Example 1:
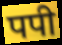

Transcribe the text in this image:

पपी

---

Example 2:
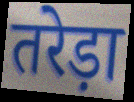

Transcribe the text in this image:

तरेड़ा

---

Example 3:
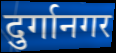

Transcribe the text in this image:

दुर्गानगर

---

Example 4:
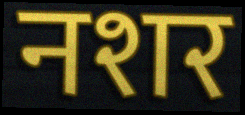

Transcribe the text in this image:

नशर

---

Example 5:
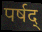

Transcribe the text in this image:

पर्षद्